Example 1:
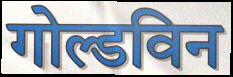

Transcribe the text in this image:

गोल्डविन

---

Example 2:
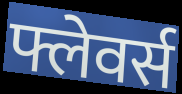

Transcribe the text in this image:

फ्लेवर्स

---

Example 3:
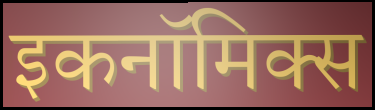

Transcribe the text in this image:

इकनॉमिक्स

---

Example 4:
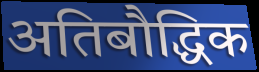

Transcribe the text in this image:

अतिबौद्धिक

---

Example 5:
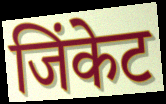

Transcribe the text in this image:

जिंकेट